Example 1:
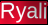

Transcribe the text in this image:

Ryali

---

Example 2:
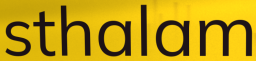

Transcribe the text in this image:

sthalam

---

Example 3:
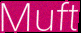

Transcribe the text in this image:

Muft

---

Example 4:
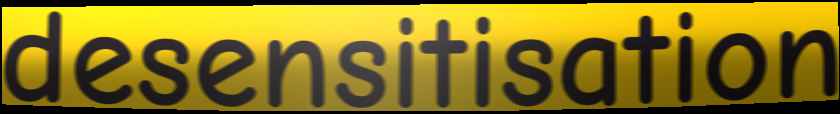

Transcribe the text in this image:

desensitisation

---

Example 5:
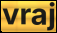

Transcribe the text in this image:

vraj